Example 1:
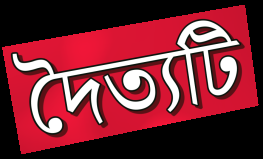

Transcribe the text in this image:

দৈত্যটি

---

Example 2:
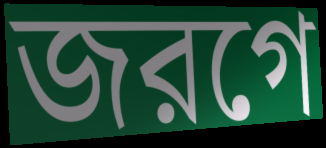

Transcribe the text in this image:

জরগে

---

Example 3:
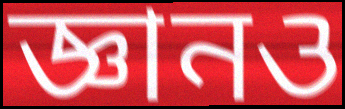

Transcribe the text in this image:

জ্ঞানও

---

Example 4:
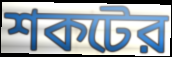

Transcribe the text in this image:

শকটের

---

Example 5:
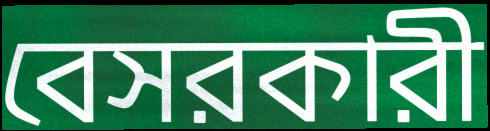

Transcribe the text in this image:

বেসরকারী